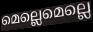
മെല്ലെമെല്ലെ